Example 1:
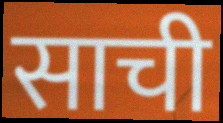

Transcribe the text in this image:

साची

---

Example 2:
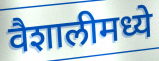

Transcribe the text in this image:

वैशालीमध्ये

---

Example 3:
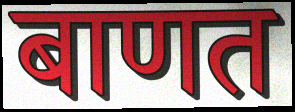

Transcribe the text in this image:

बाणत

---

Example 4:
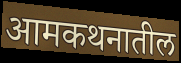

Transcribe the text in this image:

आमकथनातील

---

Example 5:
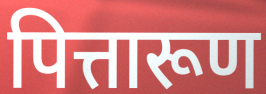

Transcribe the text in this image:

पित्तारूण